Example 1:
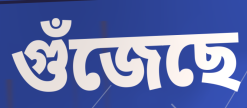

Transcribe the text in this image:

গুঁজেছে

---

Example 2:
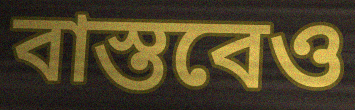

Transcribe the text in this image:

বাস্তবেও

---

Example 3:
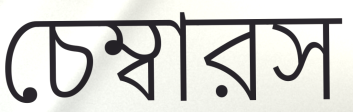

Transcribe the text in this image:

চেম্বারস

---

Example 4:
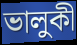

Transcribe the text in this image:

ভালুকী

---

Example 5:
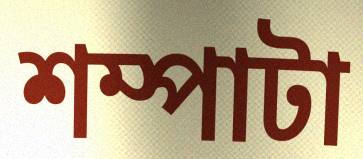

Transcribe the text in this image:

শম্পাটা